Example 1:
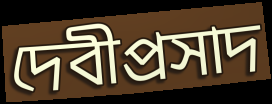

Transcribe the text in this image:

দেবীপ্রসাদ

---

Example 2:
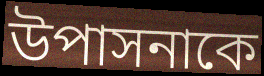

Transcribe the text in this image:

উপাসনাকে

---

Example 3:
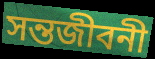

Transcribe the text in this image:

সন্তজীবনী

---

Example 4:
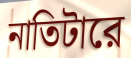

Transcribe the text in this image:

নাতিটারে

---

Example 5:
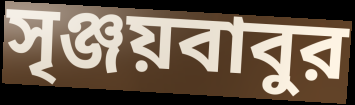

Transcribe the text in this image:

সৃঞ্জয়বাবুর